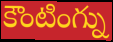
కౌంటింగ్ను